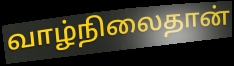
வாழ்நிலைதான்